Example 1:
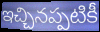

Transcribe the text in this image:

ఇచ్చినప్పటికీ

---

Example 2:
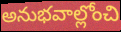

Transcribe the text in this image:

అనుభవాల్లోంచి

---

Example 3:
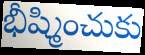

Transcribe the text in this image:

భీష్మించుకు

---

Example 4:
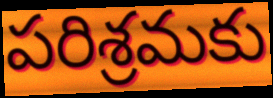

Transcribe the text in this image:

పరిశ్రమకు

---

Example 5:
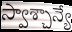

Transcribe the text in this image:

స్వాశ్చాన్యే